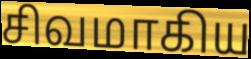
சிவமாகிய